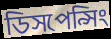
ডিসপেন্সিং